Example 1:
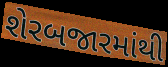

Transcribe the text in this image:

શેરબજારમાંથી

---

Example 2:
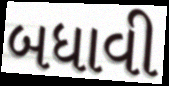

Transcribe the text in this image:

બધાવી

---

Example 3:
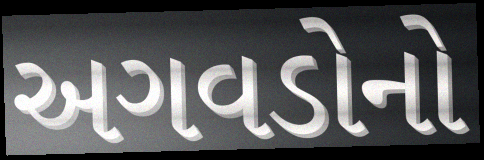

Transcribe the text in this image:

અગવડોનો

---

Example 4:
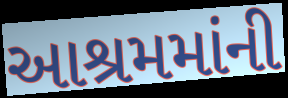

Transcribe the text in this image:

આશ્રમમાંની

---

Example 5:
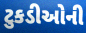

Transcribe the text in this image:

ટુકડીઓની